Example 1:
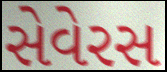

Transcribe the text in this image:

સેવેરસ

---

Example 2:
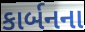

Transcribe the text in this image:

કાર્બનના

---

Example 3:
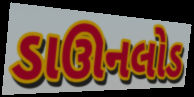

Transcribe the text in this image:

ડાઊનલોડ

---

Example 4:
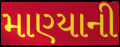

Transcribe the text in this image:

માણ્યાની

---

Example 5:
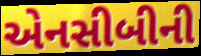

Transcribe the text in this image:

એનસીબીની